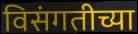
विसंगतीच्या